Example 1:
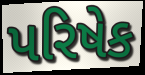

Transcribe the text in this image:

પરિષેક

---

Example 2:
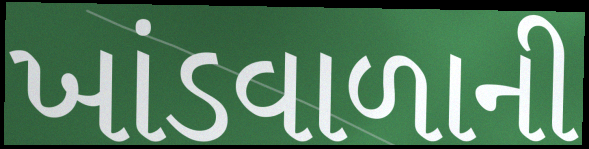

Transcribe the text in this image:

ખાંડવાળાની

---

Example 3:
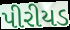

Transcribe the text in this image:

પીરીયડ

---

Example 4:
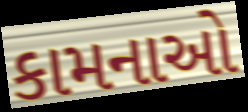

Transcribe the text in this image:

કામનાઓ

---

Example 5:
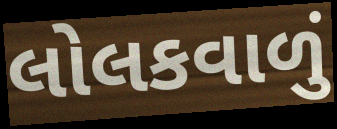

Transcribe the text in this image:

લોલકવાળું